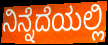
ನಿನ್ನೆದೆಯಲ್ಲಿ